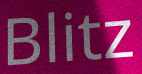
Blitz